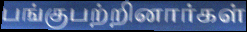
பங்குபற்றினார்கள்